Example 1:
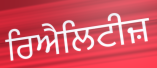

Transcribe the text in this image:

ਰਿਐਲਿਟੀਜ਼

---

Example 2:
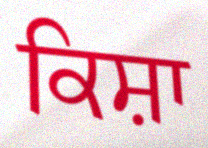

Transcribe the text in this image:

ਕਿਸ਼ਾ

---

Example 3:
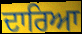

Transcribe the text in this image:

ਦਾਰਿਆ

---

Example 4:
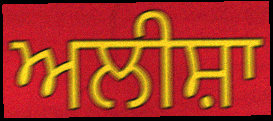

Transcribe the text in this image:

ਅਲੀਸ਼ਾ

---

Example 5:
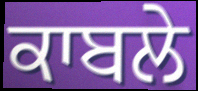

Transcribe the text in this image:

ਕਾਬਲੇ